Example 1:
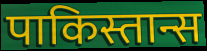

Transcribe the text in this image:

पाकिस्तान्स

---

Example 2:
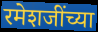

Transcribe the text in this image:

रमेशजींच्या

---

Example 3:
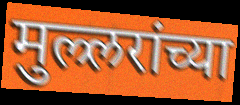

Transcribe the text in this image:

मुल्लरांच्या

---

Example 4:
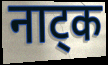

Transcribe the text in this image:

नाट्क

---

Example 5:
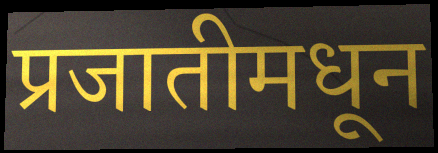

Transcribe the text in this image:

प्रजातीमधून